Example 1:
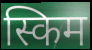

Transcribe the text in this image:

स्किम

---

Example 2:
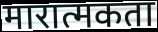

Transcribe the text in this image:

मारात्मकता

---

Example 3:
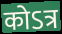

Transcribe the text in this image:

कोऽत्र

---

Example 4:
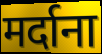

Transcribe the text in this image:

मर्दाना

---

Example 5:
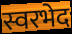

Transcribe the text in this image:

स्वरभेद